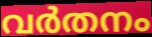
വർതനം